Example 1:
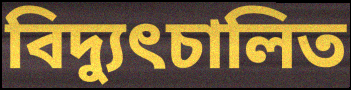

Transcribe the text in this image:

বিদ্যুৎচালিত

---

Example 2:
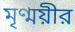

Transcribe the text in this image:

মৃণ্ময়ীর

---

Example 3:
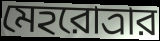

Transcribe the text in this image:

মেহরোত্রার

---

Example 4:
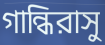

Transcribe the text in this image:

গান্ধিরাসু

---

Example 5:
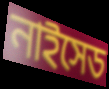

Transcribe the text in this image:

নাইসেড